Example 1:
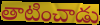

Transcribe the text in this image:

తాటించాడు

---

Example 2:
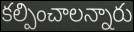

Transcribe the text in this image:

కల్పించాలన్నారు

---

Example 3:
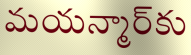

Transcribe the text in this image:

మయన్మార్‌కు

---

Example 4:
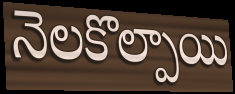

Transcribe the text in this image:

నెలకొల్పాయి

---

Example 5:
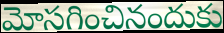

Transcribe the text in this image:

మోసగించినందుకు